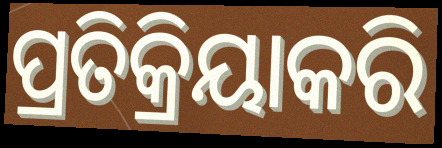
ପ୍ରତିକ୍ରିୟାକରି